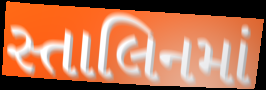
સ્તાલિનમાં